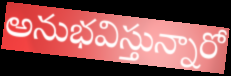
అనుభవిస్తున్నారో